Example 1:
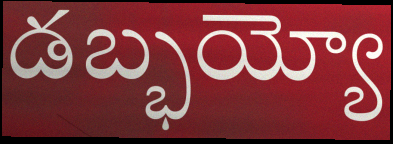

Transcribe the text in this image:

డబ్భయ్యో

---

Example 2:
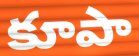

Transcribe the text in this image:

కూపా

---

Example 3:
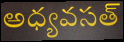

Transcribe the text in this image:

అధ్యవసత్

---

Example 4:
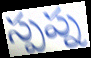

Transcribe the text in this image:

స్పప్న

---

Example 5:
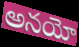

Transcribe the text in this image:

అనయో